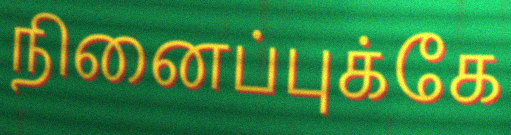
நினைப்புக்கே